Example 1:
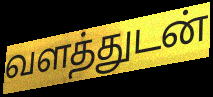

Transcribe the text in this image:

வளத்துடன்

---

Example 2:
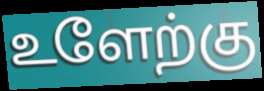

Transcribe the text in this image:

உளேற்கு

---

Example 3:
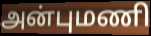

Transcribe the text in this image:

அன்புமணி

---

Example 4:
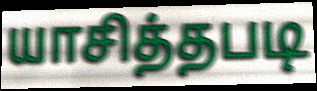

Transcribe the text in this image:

யாசித்தபடி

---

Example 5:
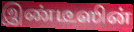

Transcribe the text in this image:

இண்டீஸின்